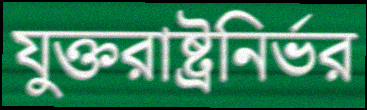
যুক্তরাষ্ট্রনির্ভর